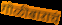
गोळीबाराचं